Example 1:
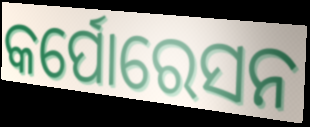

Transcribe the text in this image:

କର୍ପୋରେସନ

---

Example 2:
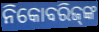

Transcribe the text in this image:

ନିକୋବରିଜ୍‍ଙ୍କ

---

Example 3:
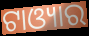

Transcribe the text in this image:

ଟାଓ୍ୟାର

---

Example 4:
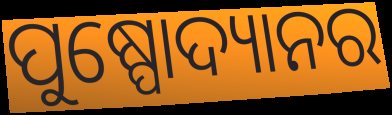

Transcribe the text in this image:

ପୁଷ୍ପୋଦ୍ୟାନର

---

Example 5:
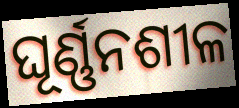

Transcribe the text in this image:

ଘୂର୍ଣ୍ଣନଶୀଳ